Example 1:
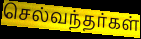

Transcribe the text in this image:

செல்வந்தர்கள்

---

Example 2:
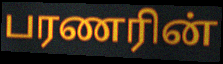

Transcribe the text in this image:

பரணரின்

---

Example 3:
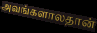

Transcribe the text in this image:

அவங்களாலதான்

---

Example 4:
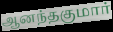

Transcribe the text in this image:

ஆனந்தகுமார்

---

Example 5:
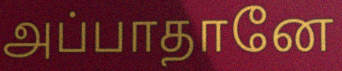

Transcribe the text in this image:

அப்பாதானே